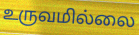
உருவமில்லை